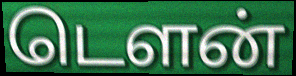
டௌன்